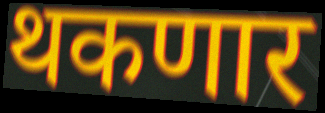
थकणार